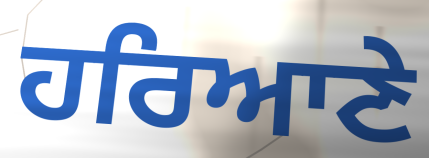
ਹਰਿਆਣੇ